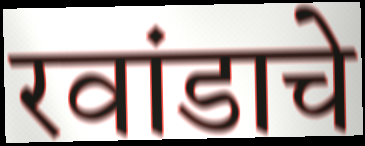
रवांडाचे